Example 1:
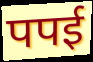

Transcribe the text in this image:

पपई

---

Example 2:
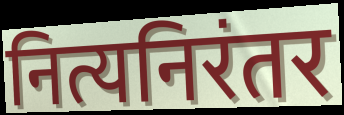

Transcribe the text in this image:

नित्यनिरंतर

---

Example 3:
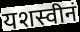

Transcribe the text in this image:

यशस्वीनं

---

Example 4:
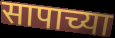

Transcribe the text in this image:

सापाच्या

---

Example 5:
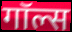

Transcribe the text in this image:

गॉल्स